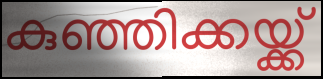
കുഞ്ഞിക്കയ്ക്ക്